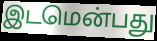
இடமென்பது